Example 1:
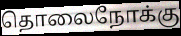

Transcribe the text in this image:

தொலைநோக்கு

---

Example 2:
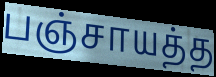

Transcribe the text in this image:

பஞ்சாயத்த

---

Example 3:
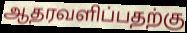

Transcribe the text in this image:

ஆதரவளிப்பதற்கு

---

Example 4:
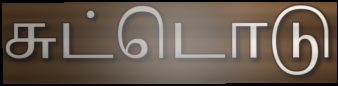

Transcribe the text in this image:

சுட்டொடு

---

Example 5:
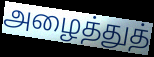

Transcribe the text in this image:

அழைத்துத்